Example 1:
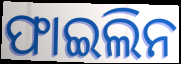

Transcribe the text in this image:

ଫାଇଲିନ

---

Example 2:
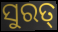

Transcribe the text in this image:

ସୁରତ୍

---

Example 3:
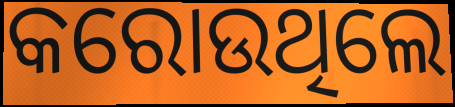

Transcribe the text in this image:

କରୋଉଥିଲେ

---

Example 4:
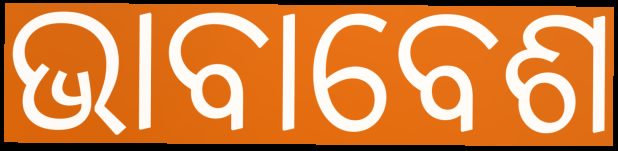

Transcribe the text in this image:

ଭାବାବେଶ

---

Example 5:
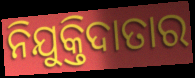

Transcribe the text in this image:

ନିଯୁକ୍ତିଦାତାର